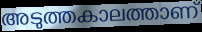
അടുത്തകാലത്താണ്